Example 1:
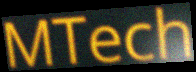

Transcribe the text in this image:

MTech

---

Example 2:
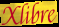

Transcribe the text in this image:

Xlibre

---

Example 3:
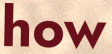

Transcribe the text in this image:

how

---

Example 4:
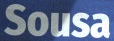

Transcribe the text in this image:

Sousa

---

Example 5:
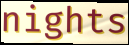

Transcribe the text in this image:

nights